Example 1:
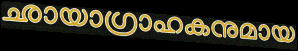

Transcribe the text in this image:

ഛായാഗ്രാഹകനുമായ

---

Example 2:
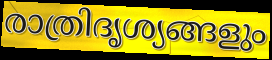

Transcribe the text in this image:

രാത്രിദൃശ്യങ്ങളും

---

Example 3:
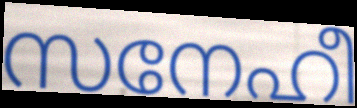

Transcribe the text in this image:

സനേഹീ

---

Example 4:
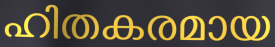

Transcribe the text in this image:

ഹിതകരമായ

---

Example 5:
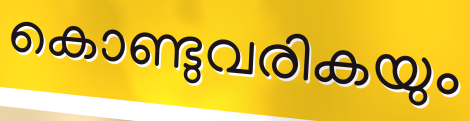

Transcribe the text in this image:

കൊണ്ടുവരികയും